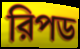
রিপড